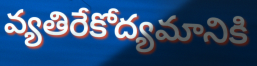
వ్యతిరేకోద్యమానికి